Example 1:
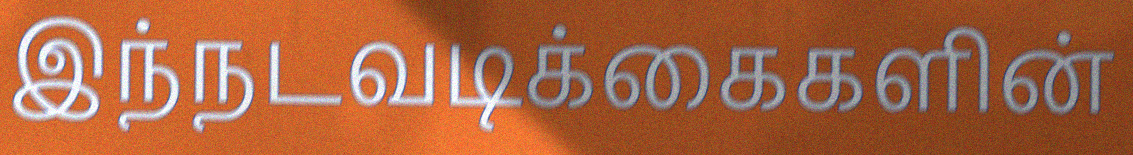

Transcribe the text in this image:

இந்நடவடிக்கைகளின்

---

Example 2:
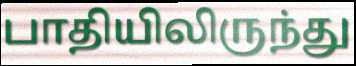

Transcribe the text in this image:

பாதியிலிருந்து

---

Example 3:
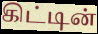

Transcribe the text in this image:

கிட்டின்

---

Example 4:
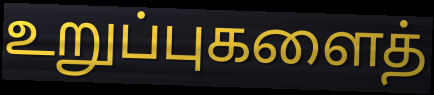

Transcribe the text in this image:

உறுப்புகளைத்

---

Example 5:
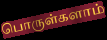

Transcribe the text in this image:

பொருள்களாம்